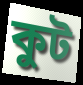
কুট